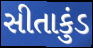
સીતાકુંડ